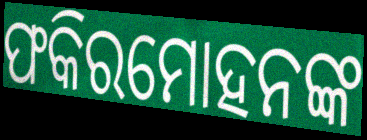
ଫକିରମୋହନଙ୍କ